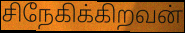
சிநேகிக்கிறவன்